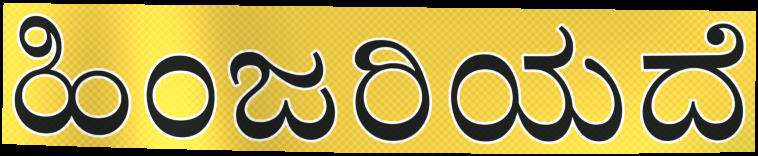
ಹಿಂಜರಿಯದೆ